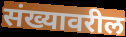
संख्यावरील